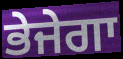
ਭੇਜੇਗਾ